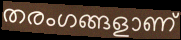
തരംഗങ്ങളാണ്